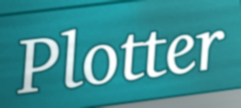
Plotter